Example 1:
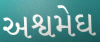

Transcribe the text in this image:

અશ્વમેઘ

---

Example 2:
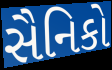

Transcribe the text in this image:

સૈનિકો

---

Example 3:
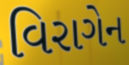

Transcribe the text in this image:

વિરાગેન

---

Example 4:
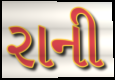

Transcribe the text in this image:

રાની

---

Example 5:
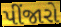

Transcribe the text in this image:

પીંજારો